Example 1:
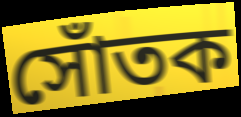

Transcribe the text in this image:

সোঁতক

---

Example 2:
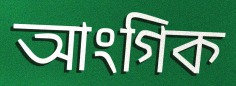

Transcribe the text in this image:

আংগিক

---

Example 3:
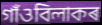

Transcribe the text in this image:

গাঁওবিলাকৰ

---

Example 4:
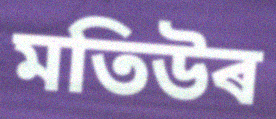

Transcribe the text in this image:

মতিউৰ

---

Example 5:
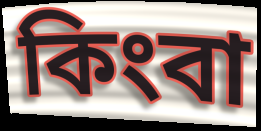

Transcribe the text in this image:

কিংবা